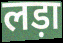
लड़ा